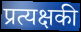
प्रत्यक्षकी